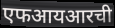
एफआयआरची